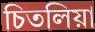
চিতলিয়া